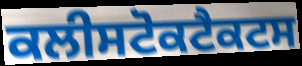
ਕਲੀਸਟੋਕਟੈਕਟਸ